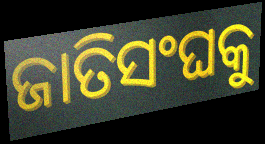
ଜାତିସଂଘକୁ